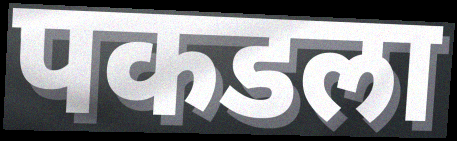
पकडला